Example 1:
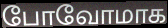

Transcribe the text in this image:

போவோமாக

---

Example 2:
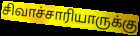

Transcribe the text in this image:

சிவாச்சாரியாருக்கு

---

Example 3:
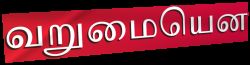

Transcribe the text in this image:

வறுமையென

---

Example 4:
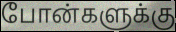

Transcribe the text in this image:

போன்களுக்கு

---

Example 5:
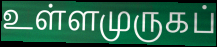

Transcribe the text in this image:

உள்ளமுருகப்